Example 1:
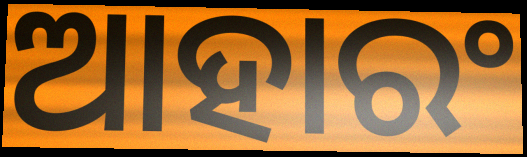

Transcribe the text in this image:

ଆହାରଂ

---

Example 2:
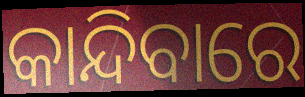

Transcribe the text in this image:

କାନ୍ଦିବାରେ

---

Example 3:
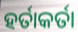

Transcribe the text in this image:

ହର୍ତାକର୍ତା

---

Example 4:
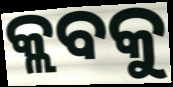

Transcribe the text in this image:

କ୍ଲବକୁ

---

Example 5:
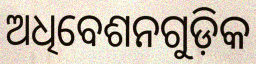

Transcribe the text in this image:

ଅଧିବେଶନଗୁଡ଼ିକ